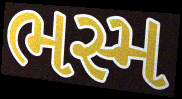
ભસ્મ